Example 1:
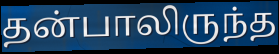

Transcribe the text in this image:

தன்பாலிருந்த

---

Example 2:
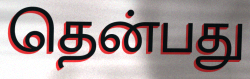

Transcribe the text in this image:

தென்பது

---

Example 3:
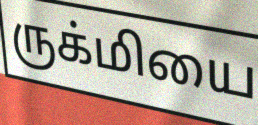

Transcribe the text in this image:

ருக்மியை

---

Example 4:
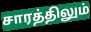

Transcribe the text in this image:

சாரத்திலும்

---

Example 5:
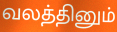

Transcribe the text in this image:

வலத்தினும்